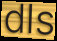
dls